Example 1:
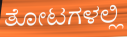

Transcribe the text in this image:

ತೋಟಗಳಲ್ಲಿ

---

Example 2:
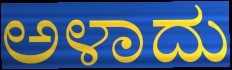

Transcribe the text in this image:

ಅಳಾದು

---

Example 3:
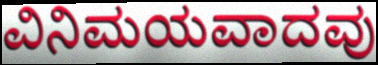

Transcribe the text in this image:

ವಿನಿಮಯವಾದವು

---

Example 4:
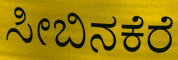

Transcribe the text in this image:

ಸೀಬಿನಕೆರೆ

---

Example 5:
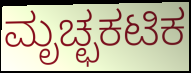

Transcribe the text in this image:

ಮೃಚ್ಛಕಟಿಕ